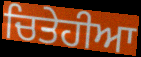
ਚਿਤੇਹੀਆ